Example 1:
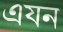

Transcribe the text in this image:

এযন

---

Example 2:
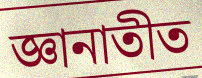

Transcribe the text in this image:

জ্ঞানাতীত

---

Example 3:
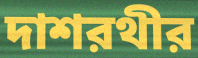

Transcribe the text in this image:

দাশরথীর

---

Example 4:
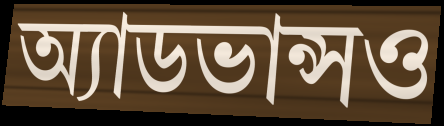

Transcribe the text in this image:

অ্যাডভান্সও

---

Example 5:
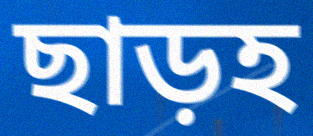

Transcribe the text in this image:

ছাড়হ